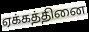
ஏக்கத்தினை